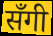
सँगी